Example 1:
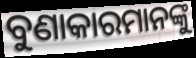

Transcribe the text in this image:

ବୁଣାକାରମାନଙ୍କୁ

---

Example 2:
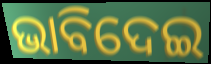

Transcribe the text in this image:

ଭାବିଦେଇ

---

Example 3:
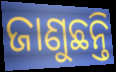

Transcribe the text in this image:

ଜାଣୁଛନ୍ତି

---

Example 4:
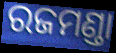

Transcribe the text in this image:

ରଜମଣ୍ଡା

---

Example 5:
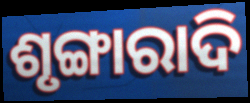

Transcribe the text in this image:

ଶୃଙ୍ଗାରାଦି